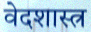
वेदशास्त्र